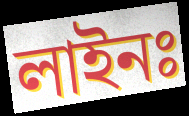
লাইনঃ